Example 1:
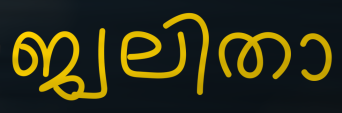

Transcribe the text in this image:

ജ്വലിതാ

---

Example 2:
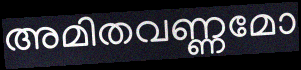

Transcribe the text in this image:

അമിതവണ്ണമോ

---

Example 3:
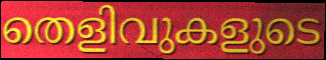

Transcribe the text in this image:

തെളിവുകളുടെ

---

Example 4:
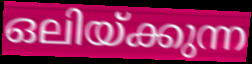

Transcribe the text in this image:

ഒലിയ്ക്കുന്ന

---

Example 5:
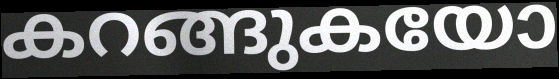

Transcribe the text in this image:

കറങ്ങുകയോ